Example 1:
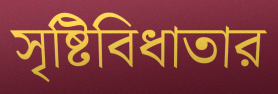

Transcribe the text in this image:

সৃষ্টিবিধাতার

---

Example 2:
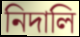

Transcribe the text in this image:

নিদালি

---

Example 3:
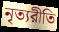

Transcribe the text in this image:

নৃত্যরীতি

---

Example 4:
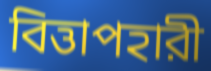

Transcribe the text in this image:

বিত্তাপহারী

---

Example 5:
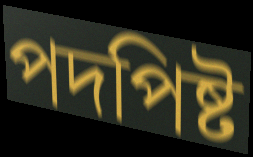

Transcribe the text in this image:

পদপিষ্ট